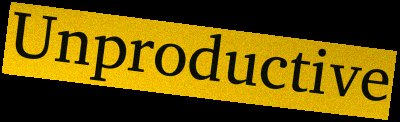
Unproductive